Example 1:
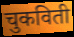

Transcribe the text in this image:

चुकविती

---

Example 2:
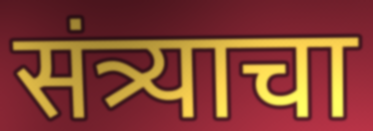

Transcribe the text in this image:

संत्र्याचा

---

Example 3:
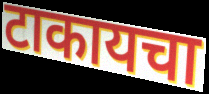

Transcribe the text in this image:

टाकायचा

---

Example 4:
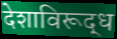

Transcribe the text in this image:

देशाविरूद्ध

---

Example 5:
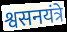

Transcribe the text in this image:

श्वसनयंत्रे